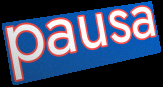
pausa